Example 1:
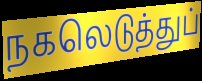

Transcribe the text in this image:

நகலெடுத்துப்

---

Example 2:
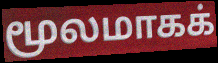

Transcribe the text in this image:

மூலமாகக்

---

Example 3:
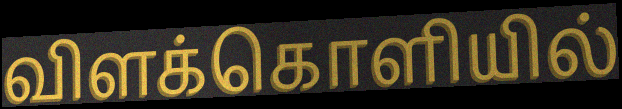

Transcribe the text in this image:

விளக்கொளியில்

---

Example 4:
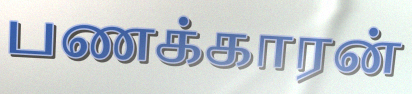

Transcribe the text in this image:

பணக்காரன்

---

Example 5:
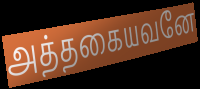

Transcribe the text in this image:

அத்தகையவனே